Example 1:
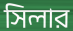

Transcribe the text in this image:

সিলার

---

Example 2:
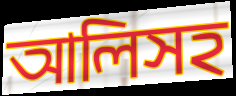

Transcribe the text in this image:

আলিসহ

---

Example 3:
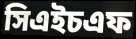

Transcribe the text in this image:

সিএইচএফ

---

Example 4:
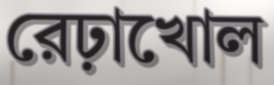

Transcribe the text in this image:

রেঢ়াখোল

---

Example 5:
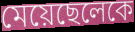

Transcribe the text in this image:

মেয়েছেলেকে